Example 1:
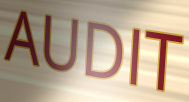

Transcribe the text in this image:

AUDIT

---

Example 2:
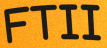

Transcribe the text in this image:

FTII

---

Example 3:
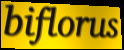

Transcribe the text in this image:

biflorus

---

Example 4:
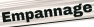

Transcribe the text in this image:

Empannage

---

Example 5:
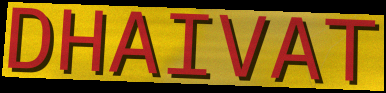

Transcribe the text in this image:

DHAIVAT